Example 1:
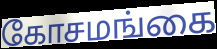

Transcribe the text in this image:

கோசமங்கை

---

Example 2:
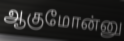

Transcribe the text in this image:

ஆகுமோன்னு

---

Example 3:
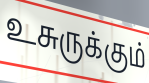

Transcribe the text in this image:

உசுருக்கும்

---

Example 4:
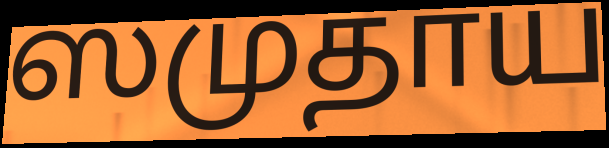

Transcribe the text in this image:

ஸமுதாய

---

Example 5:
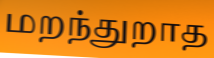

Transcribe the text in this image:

மறந்துறாத